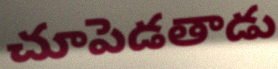
చూపెడతాడు